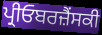
ਪ੍ਰੀਓਬਰਜ਼ੈਂਸਕੀ